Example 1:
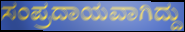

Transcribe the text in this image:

ಸಂಪ್ರದಾಯವಾಗಿದ್ದು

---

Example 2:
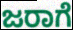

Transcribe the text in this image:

ಜರಾಗೆ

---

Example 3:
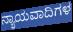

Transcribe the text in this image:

ನ್ಯಾಯವಾದಿಗಳ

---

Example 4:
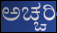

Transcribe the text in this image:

ಅಚ್ಚರಿ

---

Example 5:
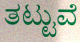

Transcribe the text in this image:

ತಟ್ಟುವೆ